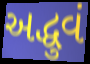
અદ્ધુવં